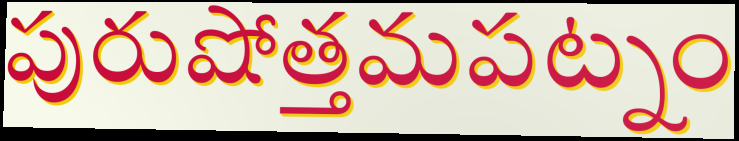
పురుషోత్తమపట్నం